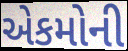
એકમોની